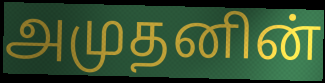
அமுதனின்